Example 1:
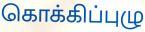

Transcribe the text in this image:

கொக்கிப்புழு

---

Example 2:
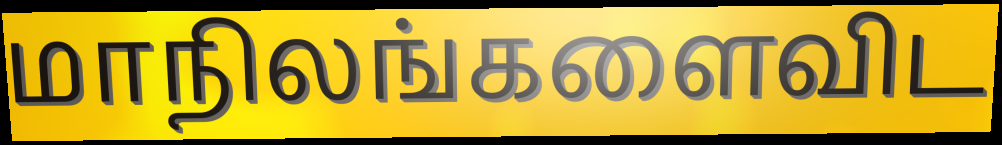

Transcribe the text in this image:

மாநிலங்களைவிட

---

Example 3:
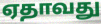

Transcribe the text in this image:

ஏதாவது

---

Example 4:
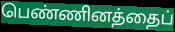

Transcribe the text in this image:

பெண்ணினத்தைப்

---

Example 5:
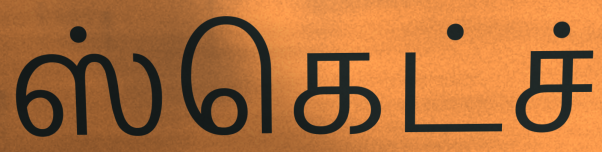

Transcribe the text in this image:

ஸ்கெட்ச்